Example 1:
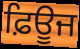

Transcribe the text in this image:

ਫ਼ਿਊਜ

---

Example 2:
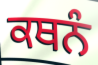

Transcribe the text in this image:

ਕਥਨੰ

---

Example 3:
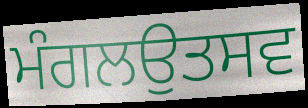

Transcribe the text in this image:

ਮੰਗਲਉਤਸਵ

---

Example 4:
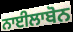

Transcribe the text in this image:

ਨਾਈਲਾਬੋਨ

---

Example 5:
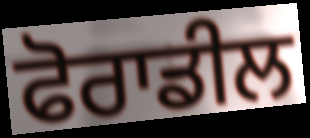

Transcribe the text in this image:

ਫੋਰਾਡੀਲ